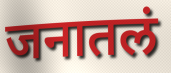
जनातलं